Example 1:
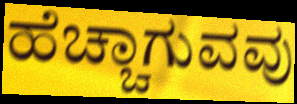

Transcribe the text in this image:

ಹೆಚ್ಚಾಗುವವು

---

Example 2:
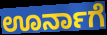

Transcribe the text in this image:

ಊರ್ನಾಗೆ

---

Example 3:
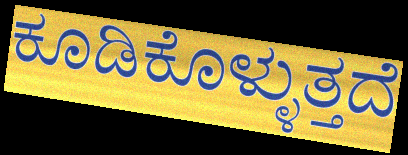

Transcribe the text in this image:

ಕೂಡಿಕೊಳ್ಳುತ್ತದೆ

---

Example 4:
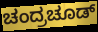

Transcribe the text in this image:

ಚಂದ್ರಚೂಡ್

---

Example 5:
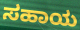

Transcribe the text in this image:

ಸಹಾಯ